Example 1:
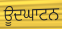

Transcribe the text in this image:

ਊਦਘਾਟਨ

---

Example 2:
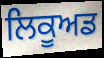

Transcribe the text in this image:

ਲਿਕੂਅਡ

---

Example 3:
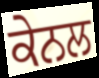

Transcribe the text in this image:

ਕੇਨਲ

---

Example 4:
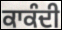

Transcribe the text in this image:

ਕਾਕੰਦੀ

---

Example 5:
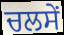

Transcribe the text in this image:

ਚਲਸੇਂ